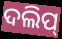
ଦଲିପ୍